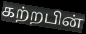
கற்றபின்